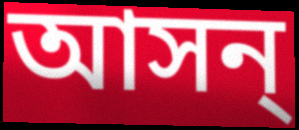
আসন্